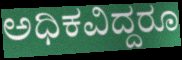
ಅಧಿಕವಿದ್ದರೂ